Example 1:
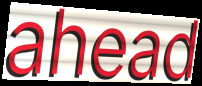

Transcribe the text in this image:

ahead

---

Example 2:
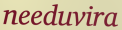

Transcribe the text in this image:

needuvira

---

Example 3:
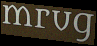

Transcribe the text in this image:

mrug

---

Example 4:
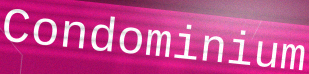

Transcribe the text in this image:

Condominium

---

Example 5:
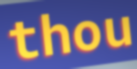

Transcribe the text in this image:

thou